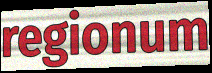
regionum